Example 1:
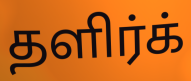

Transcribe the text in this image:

தளிர்க்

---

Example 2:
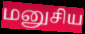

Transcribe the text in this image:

மனுசிய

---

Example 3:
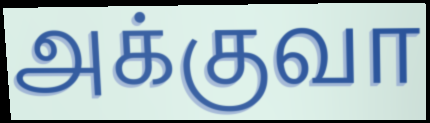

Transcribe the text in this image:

அக்குவா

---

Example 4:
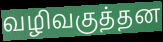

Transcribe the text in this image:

வழிவகுத்தன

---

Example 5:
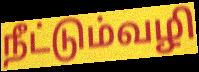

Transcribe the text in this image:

நீட்டும்வழி